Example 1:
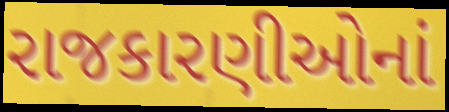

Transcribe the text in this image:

રાજકારણીઓનાં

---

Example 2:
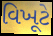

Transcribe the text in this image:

વિખૂટે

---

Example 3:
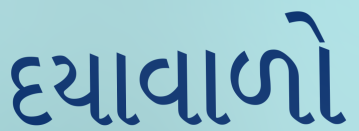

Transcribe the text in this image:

દયાવાળો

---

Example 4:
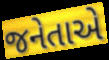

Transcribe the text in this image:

જનેતાએ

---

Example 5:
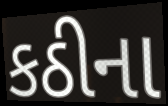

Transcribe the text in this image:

કઠીના